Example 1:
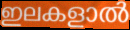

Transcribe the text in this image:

ഇലകളാൽ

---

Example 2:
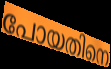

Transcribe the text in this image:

പോയതിനെ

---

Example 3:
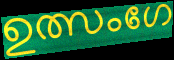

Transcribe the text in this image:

ഉത്സംഗേ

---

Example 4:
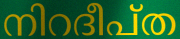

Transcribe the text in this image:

നിറദീപ്ത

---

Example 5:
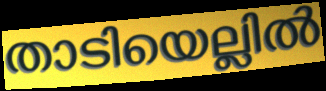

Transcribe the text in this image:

താടിയെല്ലിൽ